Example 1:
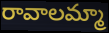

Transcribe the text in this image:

రావాలమ్మా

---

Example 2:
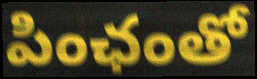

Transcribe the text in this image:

పింఛంతో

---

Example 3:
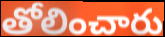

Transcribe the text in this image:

తోలించారు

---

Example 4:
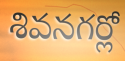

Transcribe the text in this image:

శివనగర్లో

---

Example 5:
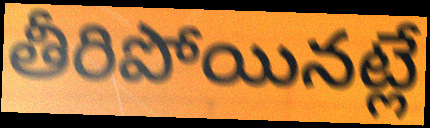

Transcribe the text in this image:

తీరిపోయినట్లే